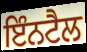
ਇੰਨਟੈਲ